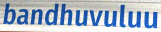
bandhuvuluu